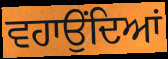
ਵਹਾਉਂਦਿਆਂ